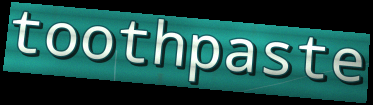
toothpaste